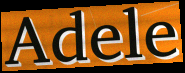
Adele